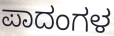
ಪಾದಂಗಳ